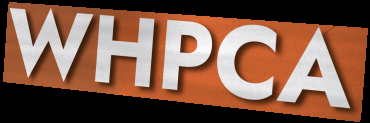
WHPCA